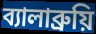
ব্যালাব্রুয়ি